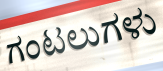
ಗಂಟಲುಗಳು